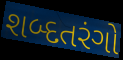
શબ્દતરંગો